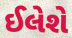
ઈલેશે